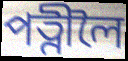
পত্নীলৈ